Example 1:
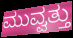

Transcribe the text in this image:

ಮುವ್ವತ್ತು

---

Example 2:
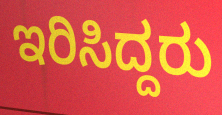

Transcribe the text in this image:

ಇರಿಸಿದ್ದರು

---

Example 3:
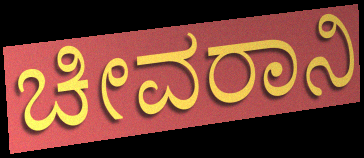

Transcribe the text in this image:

ಚೀವರಾನಿ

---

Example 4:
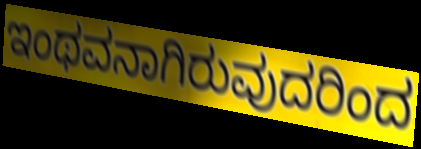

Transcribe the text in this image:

ಇಂಥವನಾಗಿರುವುದರಿಂದ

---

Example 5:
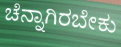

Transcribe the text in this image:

ಚೆನ್ನಾಗಿರಬೇಕು